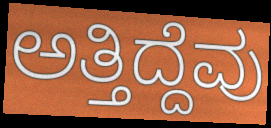
ಅತ್ತಿದ್ದೆವು